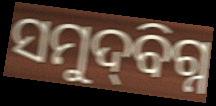
ସମୁଦ୍‌ବିଗ୍ନ